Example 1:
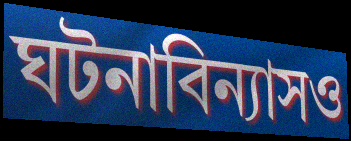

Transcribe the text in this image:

ঘটনাবিন্যাসও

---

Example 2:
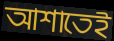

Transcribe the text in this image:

আশাতেই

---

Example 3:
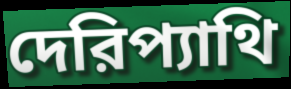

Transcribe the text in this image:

দেরিপ্যাথি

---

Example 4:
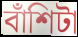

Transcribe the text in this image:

বাঁশিটা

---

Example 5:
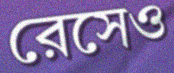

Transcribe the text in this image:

রেসেও